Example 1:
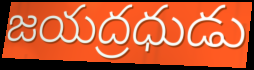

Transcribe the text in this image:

జయద్రధుడు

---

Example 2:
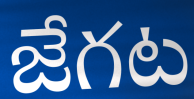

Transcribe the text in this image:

జేగట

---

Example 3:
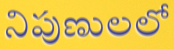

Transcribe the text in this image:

నిపుణులలో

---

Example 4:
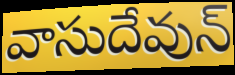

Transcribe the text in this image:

వాసుదేవున్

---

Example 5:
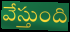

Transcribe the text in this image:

వేస్తుంది